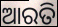
ଆରତି